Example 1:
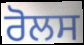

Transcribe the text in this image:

ਰੋਲਸ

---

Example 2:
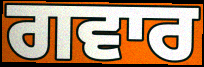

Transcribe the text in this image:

ਗਵਾਰ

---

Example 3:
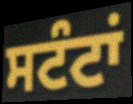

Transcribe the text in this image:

ਸਟੰਟਾਂ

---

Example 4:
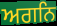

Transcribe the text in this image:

ਅਗਨਿ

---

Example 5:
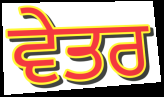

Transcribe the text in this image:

ਵੇਤਰ